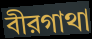
বীরগাথা